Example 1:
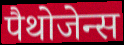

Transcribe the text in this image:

पैथोजेन्स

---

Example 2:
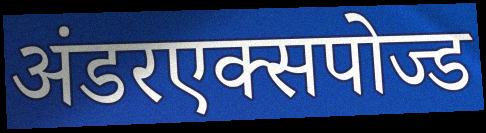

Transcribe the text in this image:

अंडरएक्सपोज्ड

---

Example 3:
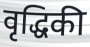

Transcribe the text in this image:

वृद्धिकी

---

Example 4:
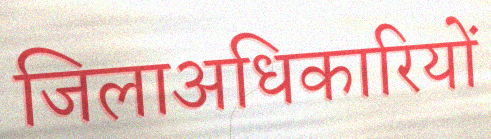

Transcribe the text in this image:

जिलाअधिकारियों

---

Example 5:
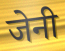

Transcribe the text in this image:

जेनी